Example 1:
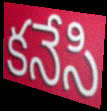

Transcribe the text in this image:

కనేసి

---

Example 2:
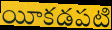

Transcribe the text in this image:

యీకడపటి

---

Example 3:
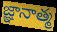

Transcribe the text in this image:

జ్ఞానాత్మ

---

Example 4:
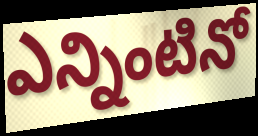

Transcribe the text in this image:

ఎన్నింటినో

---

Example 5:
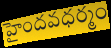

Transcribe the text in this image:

హైందవధర్మం